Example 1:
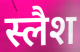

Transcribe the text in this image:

स्लैश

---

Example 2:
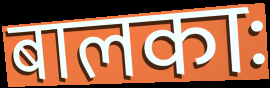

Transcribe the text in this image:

बालकाः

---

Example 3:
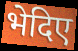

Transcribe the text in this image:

भेदिए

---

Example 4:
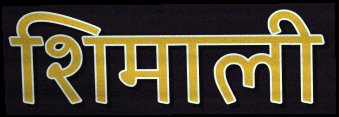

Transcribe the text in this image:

शिमाली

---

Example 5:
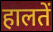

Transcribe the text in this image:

हालतें